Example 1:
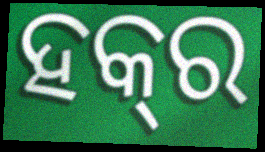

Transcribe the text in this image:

ହକ୍‌ର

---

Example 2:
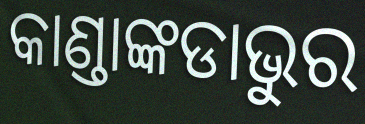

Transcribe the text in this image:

କାଣ୍ଡାଙ୍କଡାଭୁର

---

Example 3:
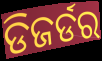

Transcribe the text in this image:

ଡିଜର୍ଡର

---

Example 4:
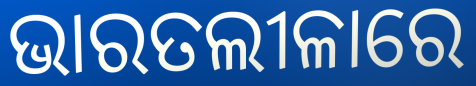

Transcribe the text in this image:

ଭାରତଲୀଳାରେ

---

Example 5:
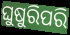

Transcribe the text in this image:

ଘୁଷୁରିପରି